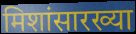
मिशांसारख्या